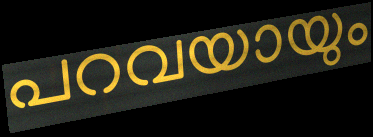
പറവയായും